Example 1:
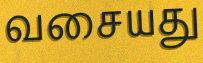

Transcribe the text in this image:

வசையது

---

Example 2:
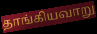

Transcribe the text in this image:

தாங்கியவாறு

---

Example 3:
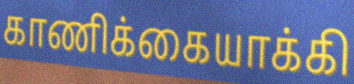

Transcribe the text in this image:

காணிக்கையாக்கி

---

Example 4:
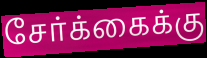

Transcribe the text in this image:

சேர்க்கைக்கு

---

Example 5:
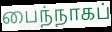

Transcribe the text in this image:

பைந்நாகப்